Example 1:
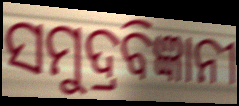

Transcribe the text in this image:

ସମୁଦ୍ରବିଜ୍ଞାନୀ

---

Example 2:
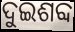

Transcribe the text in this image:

ଦୁଇଶବ୍ଦ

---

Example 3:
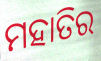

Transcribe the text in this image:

ମହାତିର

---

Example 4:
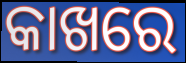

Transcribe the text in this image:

କାଖରେ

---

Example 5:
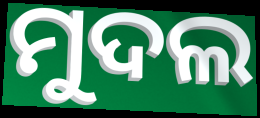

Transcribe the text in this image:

ମୁଦଲ